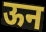
ऊन